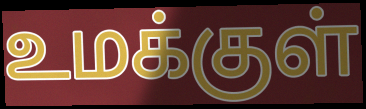
உமக்குள்